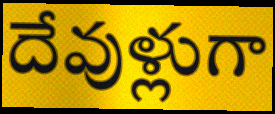
దేవుళ్లుగా